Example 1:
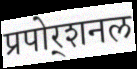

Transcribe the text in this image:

प्रपोर्शनल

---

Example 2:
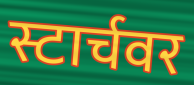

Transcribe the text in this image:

स्टार्चवर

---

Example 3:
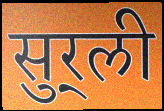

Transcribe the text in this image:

सुर्ली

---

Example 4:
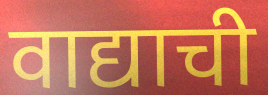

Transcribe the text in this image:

वाद्याची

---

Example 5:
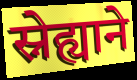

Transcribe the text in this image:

स्नेह्याने